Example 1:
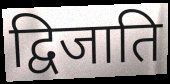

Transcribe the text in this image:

द्विजाति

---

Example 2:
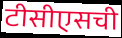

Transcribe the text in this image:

टीसीएसची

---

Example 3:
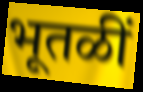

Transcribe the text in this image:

भूतळीं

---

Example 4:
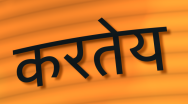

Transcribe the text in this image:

करतेय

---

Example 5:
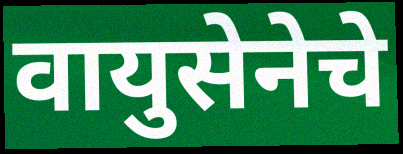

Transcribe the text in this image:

वायुसेनेचे